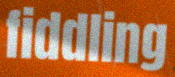
fiddling